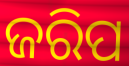
ଜରିପ